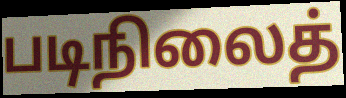
படிநிலைத்